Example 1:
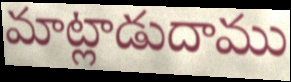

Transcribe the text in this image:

మాట్లాడుదాము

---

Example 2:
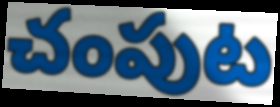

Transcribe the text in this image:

చంపుట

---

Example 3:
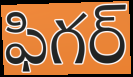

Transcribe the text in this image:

ఫిగర్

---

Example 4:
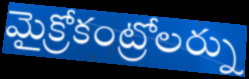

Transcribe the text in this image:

మైక్రోకంట్రోలర్ను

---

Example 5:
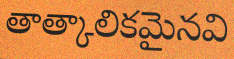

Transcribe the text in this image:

తాత్కాలికమైనవి